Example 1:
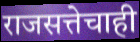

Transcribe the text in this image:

राजसत्तेचाही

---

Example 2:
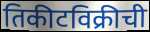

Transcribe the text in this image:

तिकीटविक्रीची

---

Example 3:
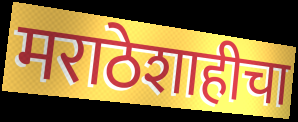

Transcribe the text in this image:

मराठेशाहीचा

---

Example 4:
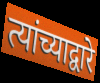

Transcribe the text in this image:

त्यांच्याद्वारे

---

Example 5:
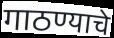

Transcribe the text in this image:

गाठण्याचे